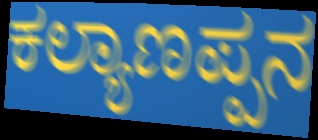
ಕಲ್ಯಾಣಪ್ಪನ